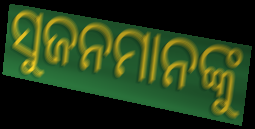
ସୁଜନମାନଙ୍କୁ